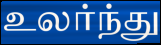
உலர்ந்து